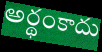
అర్థంకాదు